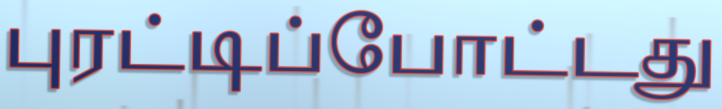
புரட்டிப்போட்டது